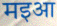
मइआ